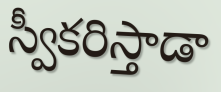
స్వీకరిస్తాడా